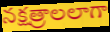
నక్షత్రాలలాగా